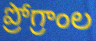
ప్రోగ్రాంల